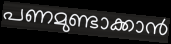
പണമുണ്ടാക്കാൻ